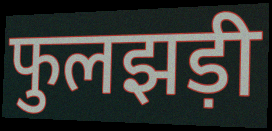
फुलझड़ी